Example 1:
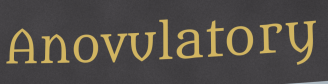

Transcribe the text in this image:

Anovulatory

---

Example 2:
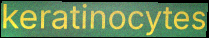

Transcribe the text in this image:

keratinocytes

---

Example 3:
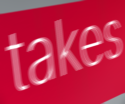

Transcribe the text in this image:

takes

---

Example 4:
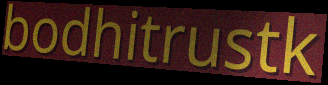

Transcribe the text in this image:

bodhitrustk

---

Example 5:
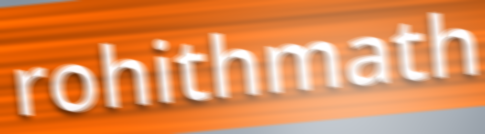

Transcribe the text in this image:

rohithmath